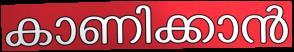
കാണിക്കാൻ